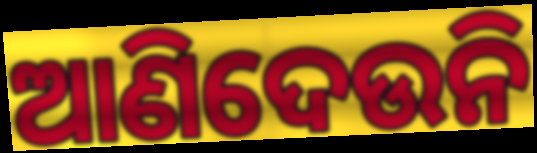
ଆଣିଦେଉନି